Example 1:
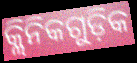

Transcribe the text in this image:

କ୍ଲିନିକଗୁଡ଼ିକ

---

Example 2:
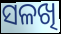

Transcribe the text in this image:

ସଳଖି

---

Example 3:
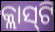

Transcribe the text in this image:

କ୍ଲାସ୍‍ଟି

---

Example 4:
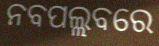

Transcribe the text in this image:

ନବପଲ୍ଲବରେ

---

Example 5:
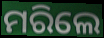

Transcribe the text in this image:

ମରିଲେ